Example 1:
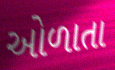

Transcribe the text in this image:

ઓળાતા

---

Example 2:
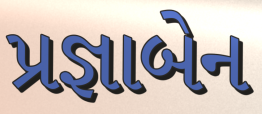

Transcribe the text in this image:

પ્રજ્ઞાબેન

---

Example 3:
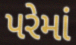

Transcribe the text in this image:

પરેમાં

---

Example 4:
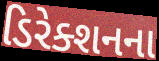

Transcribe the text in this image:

ડિરેક્શનના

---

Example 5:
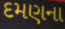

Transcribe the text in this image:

દમણના